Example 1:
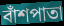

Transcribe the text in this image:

বাঁশপাতা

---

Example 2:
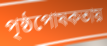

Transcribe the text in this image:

পৃষ্ঠপোষকতায়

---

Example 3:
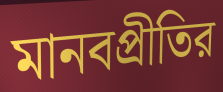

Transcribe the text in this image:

মানবপ্রীতির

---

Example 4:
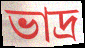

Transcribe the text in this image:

ভাদ্র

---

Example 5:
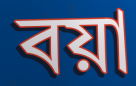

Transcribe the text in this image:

বয়া